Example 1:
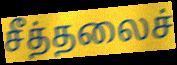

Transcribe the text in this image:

சீத்தலைச்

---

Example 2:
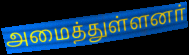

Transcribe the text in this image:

அமைத்துள்ளனர்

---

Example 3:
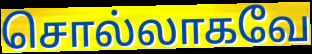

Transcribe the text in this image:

சொல்லாகவே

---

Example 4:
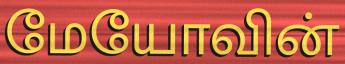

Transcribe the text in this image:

மேயோவின்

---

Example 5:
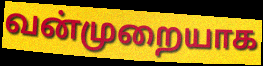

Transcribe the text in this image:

வன்முறையாக